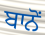
ਬਾਨੋਂ